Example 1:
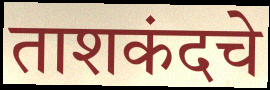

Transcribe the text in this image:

ताशकंदचे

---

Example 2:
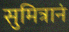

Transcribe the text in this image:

सुमित्रानं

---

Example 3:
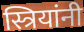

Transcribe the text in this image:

स्त्रियांनी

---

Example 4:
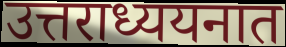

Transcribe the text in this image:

उत्तराध्ययनात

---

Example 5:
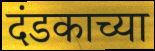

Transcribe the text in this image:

दंडकाच्या